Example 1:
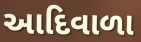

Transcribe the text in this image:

આદિવાળા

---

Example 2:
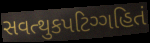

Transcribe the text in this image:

સવત્થુકપટિગ્ગહિતં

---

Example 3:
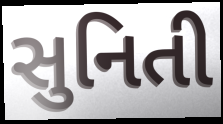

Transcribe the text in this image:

સુનિતી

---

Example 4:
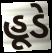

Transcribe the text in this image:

હૂડે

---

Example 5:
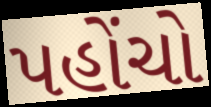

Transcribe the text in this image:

પહોંચો